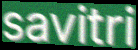
savitri